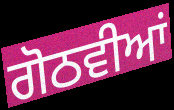
ਗੋਠਵੀਆਂ